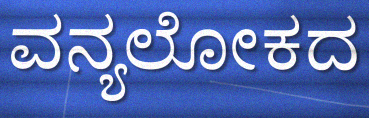
ವನ್ಯಲೋಕದ